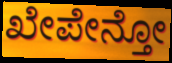
ಖೇಪೇನ್ತೋ